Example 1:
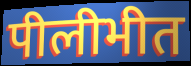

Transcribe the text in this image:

पीलीभीत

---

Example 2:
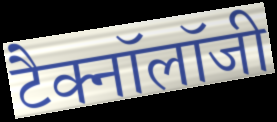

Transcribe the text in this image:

टैक्नॉलॉजी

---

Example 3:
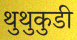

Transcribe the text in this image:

थुथुकुडी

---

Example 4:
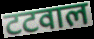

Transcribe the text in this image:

टटवाल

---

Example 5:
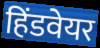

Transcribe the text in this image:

हिंडवेयर